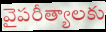
వైపరీత్యాలకు